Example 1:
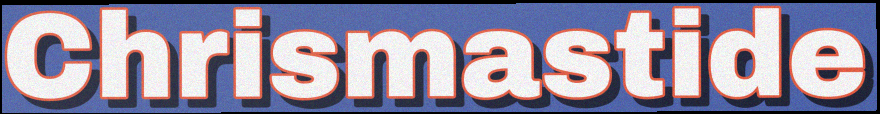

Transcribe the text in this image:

Chrismastide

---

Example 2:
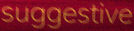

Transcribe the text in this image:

suggestive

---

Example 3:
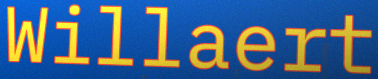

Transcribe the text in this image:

Willaert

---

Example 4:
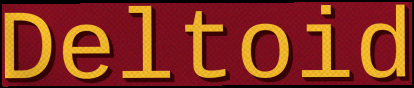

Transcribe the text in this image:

Deltoid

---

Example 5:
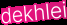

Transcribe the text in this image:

dekhlei